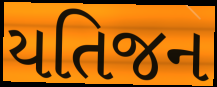
યતિજન